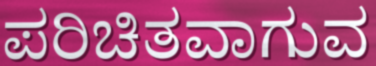
ಪರಿಚಿತವಾಗುವ